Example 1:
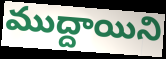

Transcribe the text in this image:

ముద్దాయిని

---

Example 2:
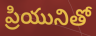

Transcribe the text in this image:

ప్రియునితో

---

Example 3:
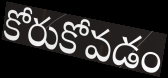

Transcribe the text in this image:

కోరుకోవడం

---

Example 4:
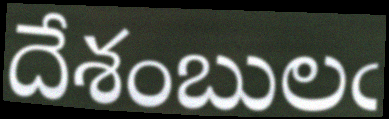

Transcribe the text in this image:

దేశంబులఁ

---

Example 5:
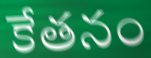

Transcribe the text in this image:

కేతనం